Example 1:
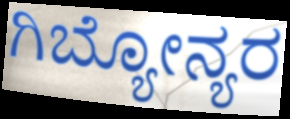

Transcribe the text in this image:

ಗಿಬ್ಯೋನ್ಯರ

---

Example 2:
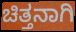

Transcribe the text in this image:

ಚಿತ್ತನಾಗಿ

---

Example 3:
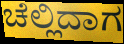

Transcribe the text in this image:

ಚೆಲ್ಲಿದಾಗ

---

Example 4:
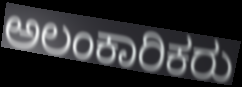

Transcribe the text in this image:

ಅಲಂಕಾರಿಕರು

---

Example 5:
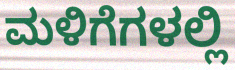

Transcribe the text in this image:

ಮಳಿಗೆಗಳಲ್ಲಿ